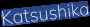
Katsushika